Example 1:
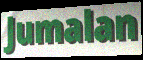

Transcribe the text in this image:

Jumalan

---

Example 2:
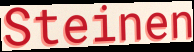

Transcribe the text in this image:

Steinen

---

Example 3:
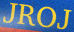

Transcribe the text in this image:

JROJ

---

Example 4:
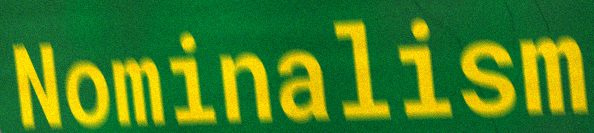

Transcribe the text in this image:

Nominalism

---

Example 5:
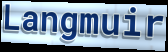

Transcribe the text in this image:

Langmuir